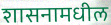
शासनामधील